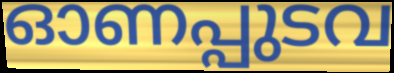
ഓണപ്പുടവ